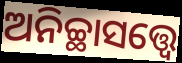
ଅନିଚ୍ଛାସତ୍ତ୍ବେ